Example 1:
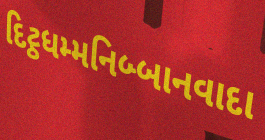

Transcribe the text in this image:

દિટ્ઠધમ્મનિબ્બાનવાદા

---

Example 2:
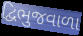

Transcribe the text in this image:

દ્વિભુજવાળા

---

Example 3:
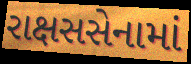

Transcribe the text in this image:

રાક્ષસસેનામાં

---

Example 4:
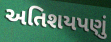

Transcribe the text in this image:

અતિશયપણું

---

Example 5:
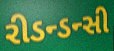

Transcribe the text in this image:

રીડન્ડન્સી